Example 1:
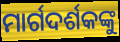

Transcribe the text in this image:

ମାର୍ଗଦର୍ଶକଙ୍କୁ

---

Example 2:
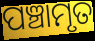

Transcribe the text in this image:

ପଞ୍ଚାମୃତ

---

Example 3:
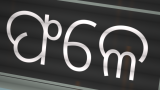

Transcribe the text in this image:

ଫଳେ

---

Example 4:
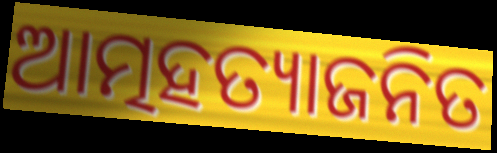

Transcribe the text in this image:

ଆତ୍ମହତ୍ୟାଜନିତ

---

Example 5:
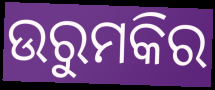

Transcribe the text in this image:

ଉରୁମକିର